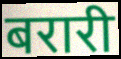
बरारी